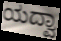
ಯದ್ವಾ